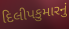
દિલીપકુમારનું